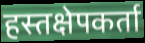
हस्तक्षेपकर्ता